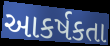
આકર્ષકતા